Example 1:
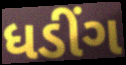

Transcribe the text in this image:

ધડીંગ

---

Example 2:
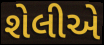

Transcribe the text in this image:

શેલીએ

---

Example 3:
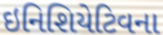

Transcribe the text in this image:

ઇનિશિયેટિવના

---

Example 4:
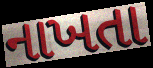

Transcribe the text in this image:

નાખતા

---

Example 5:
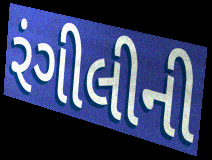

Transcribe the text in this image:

રંગીલીની